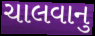
ચાલવાનુ